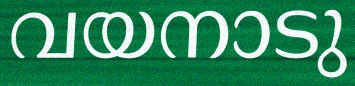
വയനാടു